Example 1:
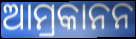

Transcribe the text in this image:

ଆମ୍ରକାନନ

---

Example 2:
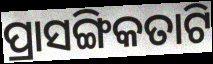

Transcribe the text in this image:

ପ୍ରାସଙ୍ଗିକତାଟି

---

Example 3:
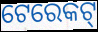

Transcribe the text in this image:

ଟେରେକଟ୍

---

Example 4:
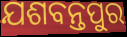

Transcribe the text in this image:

ଯଶବନ୍ତପୁର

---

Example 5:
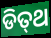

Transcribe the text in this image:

ଡିତ୍‍ଥ